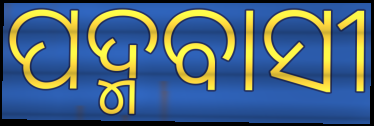
ପଦ୍ମବାସୀ